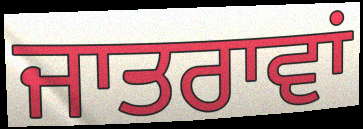
ਜਾਤਰਾਵਾਂ